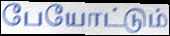
பேயோட்டும்